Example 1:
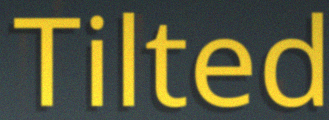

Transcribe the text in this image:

Tilted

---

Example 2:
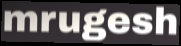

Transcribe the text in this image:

mrugesh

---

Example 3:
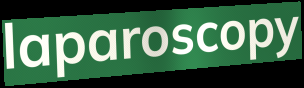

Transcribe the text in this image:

laparoscopy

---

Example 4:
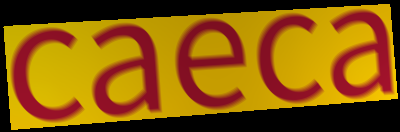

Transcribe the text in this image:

caeca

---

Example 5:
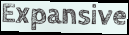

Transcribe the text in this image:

Expansive